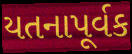
યતનાપૂર્વક